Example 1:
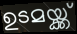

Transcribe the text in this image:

ഉടമയ്ക്ക്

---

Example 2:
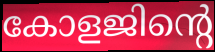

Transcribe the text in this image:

കോളജിന്റെ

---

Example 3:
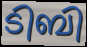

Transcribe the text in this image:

ടിബി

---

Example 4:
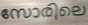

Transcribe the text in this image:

സോരിലെ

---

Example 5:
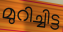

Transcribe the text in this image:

മുറിച്ചിട്ട